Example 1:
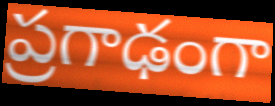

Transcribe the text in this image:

ప్రగాఢంగా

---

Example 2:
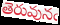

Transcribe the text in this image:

తెరువునఁ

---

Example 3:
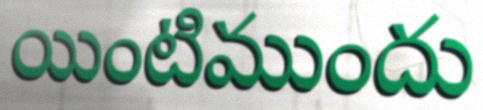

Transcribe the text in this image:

యింటిముందు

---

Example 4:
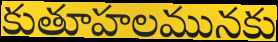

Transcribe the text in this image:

కుతూహలమునకు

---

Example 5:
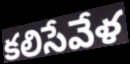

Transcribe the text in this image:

కలిసేవేళ